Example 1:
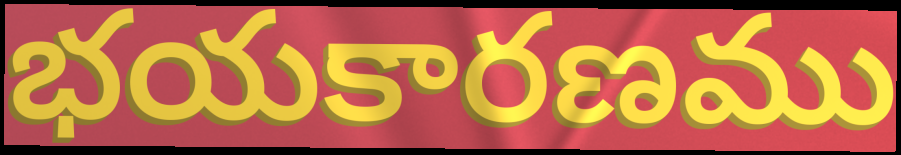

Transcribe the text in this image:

భయకారణము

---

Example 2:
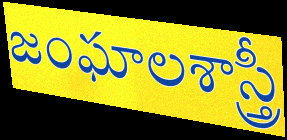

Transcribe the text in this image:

జంఘాలశాస్త్రీ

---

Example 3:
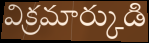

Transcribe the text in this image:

విక్రమార్కుడి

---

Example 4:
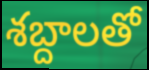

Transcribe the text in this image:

శబ్దాలతో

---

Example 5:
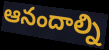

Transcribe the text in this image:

ఆనందాల్ని